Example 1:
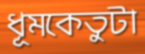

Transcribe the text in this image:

ধূমকেতুটা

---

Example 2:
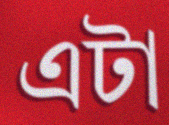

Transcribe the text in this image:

এটা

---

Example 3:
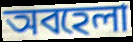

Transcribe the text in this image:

অবহেলা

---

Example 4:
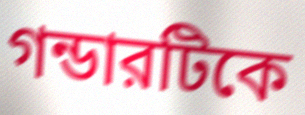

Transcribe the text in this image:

গন্ডারটিকে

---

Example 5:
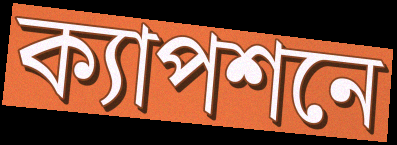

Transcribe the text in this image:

ক্যাপশনে